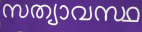
സത്യാവസ്ഥ